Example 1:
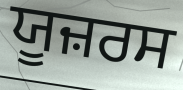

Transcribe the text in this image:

ਯੂਜ਼ਰਸ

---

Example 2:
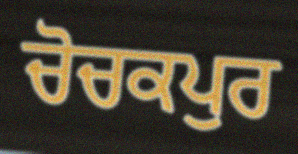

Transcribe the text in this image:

ਚੋਚਕਪੁਰ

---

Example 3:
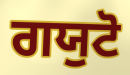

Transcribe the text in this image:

ਗਯੁਟੋ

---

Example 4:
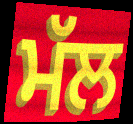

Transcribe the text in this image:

ਮੱਲ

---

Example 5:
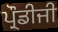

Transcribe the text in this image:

ਪ੍ਰੌਡੀਜੀ